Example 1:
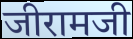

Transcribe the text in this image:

जीरामजी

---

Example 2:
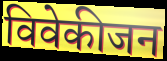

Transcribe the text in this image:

विवेकीजन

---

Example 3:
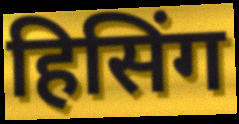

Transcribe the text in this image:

हिसिंग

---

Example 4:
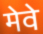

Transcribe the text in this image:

मेवे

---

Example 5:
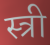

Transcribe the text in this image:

स्‍त्री